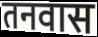
तनवास